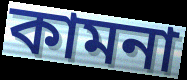
কামনা